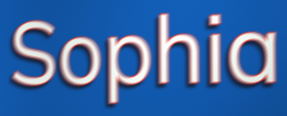
Sophia